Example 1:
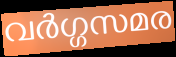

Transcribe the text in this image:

വർഗ്ഗസമര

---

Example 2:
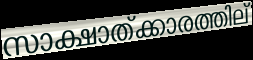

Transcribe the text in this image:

സാക്ഷാത്ക്കാരത്തില്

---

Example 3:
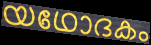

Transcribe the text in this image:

യഥോദകം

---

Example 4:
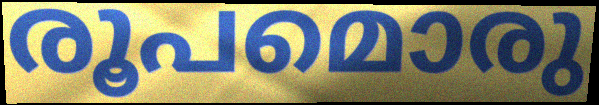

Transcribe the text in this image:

രൂപമൊരു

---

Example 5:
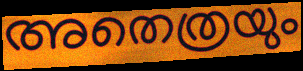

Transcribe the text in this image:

അതെത്രയും